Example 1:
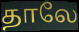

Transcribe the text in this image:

தாலே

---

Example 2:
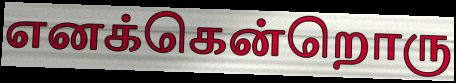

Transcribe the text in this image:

எனக்கென்றொரு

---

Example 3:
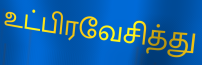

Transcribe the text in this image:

உட்பிரவேசித்து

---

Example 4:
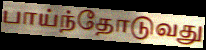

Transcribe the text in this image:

பாய்ந்தோடுவது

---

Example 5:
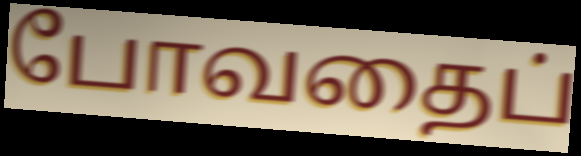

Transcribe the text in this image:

போவதைப்